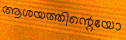
ആശയത്തിന്റെയോ